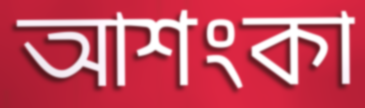
আশংকা